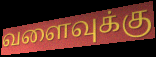
வளைவுக்கு